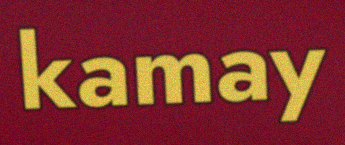
kamay